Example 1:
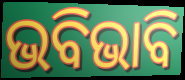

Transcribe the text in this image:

ଭବିଭାବି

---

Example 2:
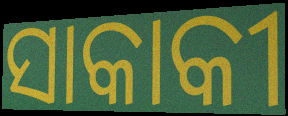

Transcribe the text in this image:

ସାକାକୀ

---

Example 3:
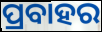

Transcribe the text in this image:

ପ୍ରବାହର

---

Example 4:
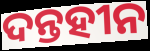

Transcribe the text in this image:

ଦନ୍ତହୀନ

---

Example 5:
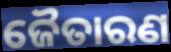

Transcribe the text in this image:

ଜୈତାରଣ